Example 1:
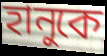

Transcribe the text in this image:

হানুকে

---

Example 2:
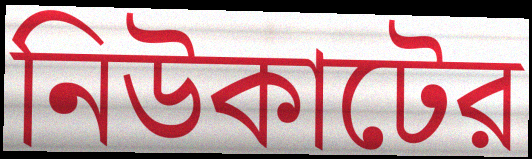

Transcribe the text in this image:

নিউকাটের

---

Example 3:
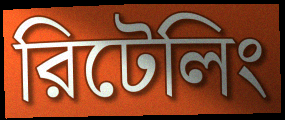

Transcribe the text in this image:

রিটেলিং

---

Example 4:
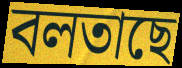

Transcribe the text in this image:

বলতাছে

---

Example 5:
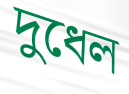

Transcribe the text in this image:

দুধেল